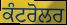
ਕੰਟਰੋਲਰ